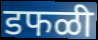
डफळी